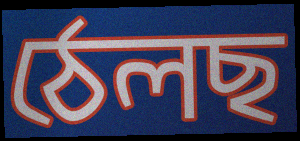
ঠেলছ